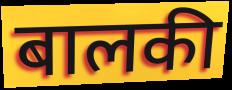
बालकी